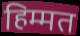
हिम्मत